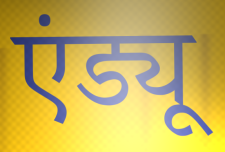
एंड्यू